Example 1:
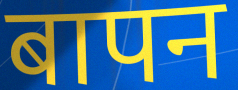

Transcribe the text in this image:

बापन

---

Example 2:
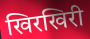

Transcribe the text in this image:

खिरखिरी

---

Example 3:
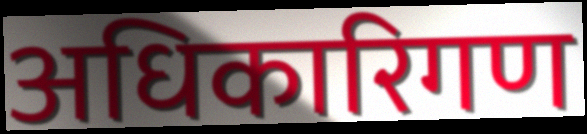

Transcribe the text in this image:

अधिकारिगण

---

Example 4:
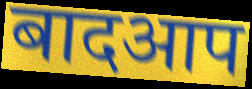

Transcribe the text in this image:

बादआप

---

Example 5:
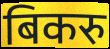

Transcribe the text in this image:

बिकरु